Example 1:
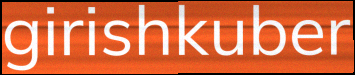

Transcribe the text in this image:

girishkuber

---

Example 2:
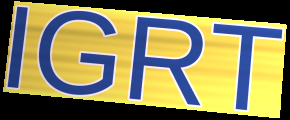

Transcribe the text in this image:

IGRT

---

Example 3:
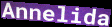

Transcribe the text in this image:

Annelida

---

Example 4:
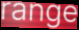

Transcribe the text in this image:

range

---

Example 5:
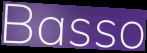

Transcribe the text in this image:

Basso